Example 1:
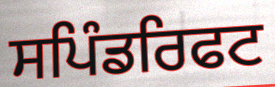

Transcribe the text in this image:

ਸਪਿੰਡਰਿਫਟ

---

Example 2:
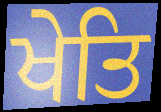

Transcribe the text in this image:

ਖੇਤਿ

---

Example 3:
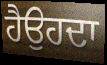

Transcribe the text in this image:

ਹੈਉਹਦਾ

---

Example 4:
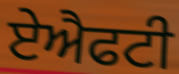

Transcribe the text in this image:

ਏਐਫਟੀ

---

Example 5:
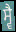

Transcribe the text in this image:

ਸ੍ਵੈ